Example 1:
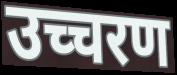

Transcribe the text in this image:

उच्चरण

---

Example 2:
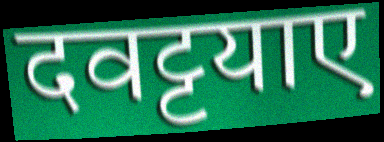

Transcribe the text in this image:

दवट्टयाए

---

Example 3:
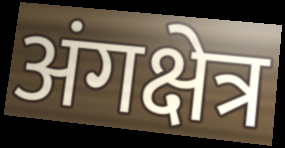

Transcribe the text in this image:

अंगक्षेत्र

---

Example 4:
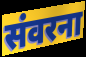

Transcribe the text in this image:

संवरना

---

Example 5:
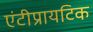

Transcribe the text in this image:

एंटीप्रायटिक